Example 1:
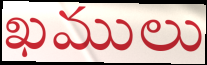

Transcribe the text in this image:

ఖములు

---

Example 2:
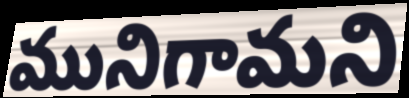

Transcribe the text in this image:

మునిగామని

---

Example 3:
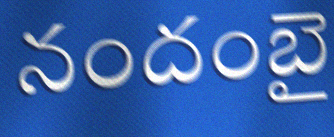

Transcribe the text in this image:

నందంబై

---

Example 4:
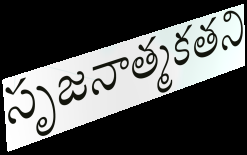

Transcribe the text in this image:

సృజనాత్మకతని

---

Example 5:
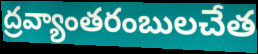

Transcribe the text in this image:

ద్రవ్యాంతరంబులచేత